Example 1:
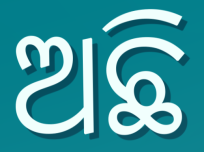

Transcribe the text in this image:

ଅଛି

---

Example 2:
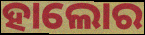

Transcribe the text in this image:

ହାଲୋର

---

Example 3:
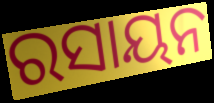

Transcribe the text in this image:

ରସାୟନ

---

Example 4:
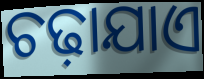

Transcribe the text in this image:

ଚଢ଼ାଯାଏ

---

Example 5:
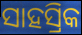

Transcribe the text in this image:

ସାହସ୍ରିକ